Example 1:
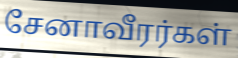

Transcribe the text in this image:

சேனாவீரர்கள்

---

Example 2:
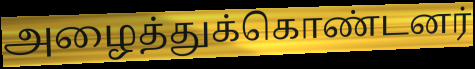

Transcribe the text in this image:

அழைத்துக்கொண்டனர்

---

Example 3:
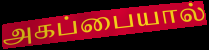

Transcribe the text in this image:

அகப்பையால்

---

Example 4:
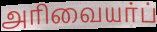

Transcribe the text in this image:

அரிவையர்ப்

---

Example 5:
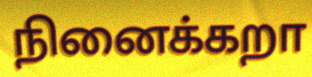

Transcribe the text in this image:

நினைக்கறா